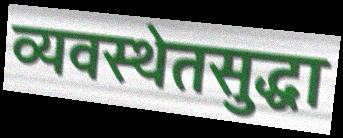
व्यवस्थेतसुद्धा